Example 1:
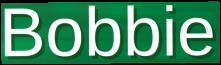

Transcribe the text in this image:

Bobbie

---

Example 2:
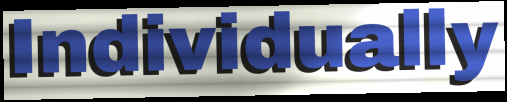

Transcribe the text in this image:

Individually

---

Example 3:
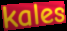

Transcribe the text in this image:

kales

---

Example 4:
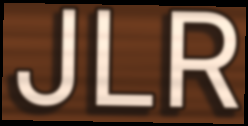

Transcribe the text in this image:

JLR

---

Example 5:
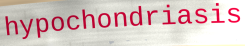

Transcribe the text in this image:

hypochondriasis